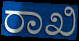
ರಾಖಿ